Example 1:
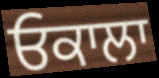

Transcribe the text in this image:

ਓਕਾਲਾ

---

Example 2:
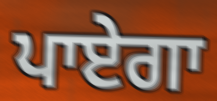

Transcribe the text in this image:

ਪਾਏਗਾ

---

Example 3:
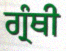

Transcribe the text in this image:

ਗ੍ਰੰਥੀ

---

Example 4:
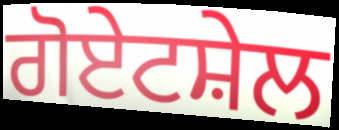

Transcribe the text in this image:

ਗੋਏਟਸ਼ੇਲ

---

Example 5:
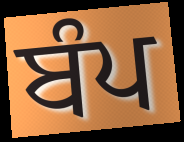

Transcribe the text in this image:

ਬੰਪ